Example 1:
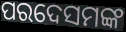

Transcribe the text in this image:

ପରଦେସମଙ୍କ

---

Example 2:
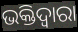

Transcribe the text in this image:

ଭକ୍ତିଦ୍ଵାରା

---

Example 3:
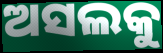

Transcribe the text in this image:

ଅସଲକୁ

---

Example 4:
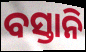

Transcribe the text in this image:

ବସ୍ତାନି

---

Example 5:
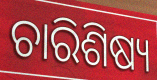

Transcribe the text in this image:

ଚାରିଶିଷ୍ୟ